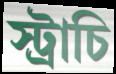
স্ট্রাচি